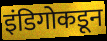
इंडिगोकडून